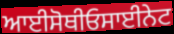
ਆਈਸੋਥੀਓਸਾਈਨੇਟ